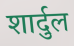
शार्दुल